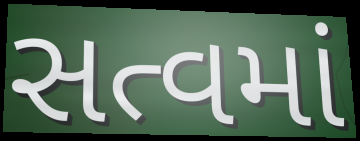
સત્વમાં